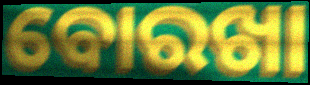
ବୋରଖା